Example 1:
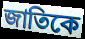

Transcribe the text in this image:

জাতিকে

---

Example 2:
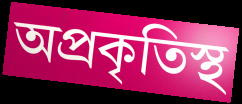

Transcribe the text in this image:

অপ্রকৃতিস্থ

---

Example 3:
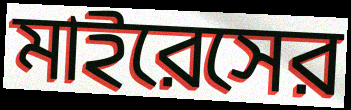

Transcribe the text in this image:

মাইরেসের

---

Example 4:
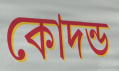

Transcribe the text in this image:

কোদন্ড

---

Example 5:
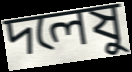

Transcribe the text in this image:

দলেষু